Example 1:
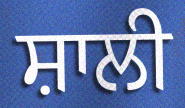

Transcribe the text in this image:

ਸ਼ਾਲੀ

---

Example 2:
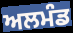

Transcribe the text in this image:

ਅਲਮੰਡ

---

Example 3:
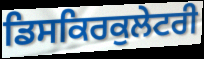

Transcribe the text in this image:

ਡਿਸਕਿਰਕੁਲੇਟਰੀ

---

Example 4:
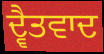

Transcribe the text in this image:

ਦ੍ਵੈਤਵਾਦ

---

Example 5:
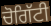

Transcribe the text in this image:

ਚੋਗਿੱਟੀ